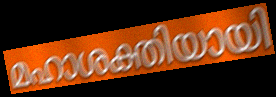
മഹാശക്തിയായി